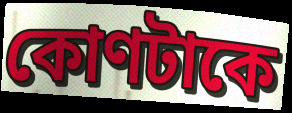
কোণটাকে